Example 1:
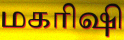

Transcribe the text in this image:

மகரிஷி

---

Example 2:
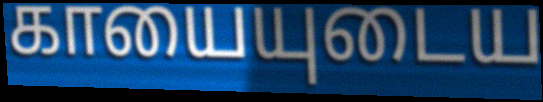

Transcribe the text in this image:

காயையுடைய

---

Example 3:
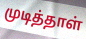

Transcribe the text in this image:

முடித்தாள்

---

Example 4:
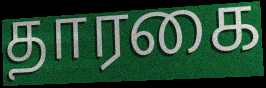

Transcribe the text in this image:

தாரகை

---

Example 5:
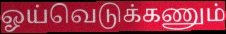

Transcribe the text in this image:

ஓய்வெடுக்கணும்